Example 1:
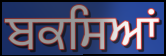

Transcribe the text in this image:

ਬਕਸਿਆਂ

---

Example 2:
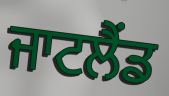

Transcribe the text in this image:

ਜਾਟਲੈਂਡ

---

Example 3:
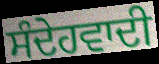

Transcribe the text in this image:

ਸੰਦੇਹਵਾਦੀ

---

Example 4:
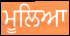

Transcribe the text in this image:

ਮੂਲਿਆ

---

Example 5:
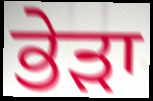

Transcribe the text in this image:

ਭੇੜਾ